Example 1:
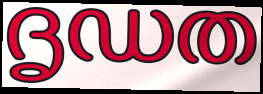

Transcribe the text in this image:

ദൃഡത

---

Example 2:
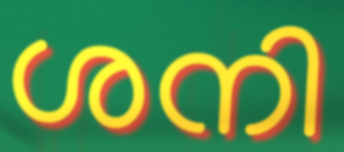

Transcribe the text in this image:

ശനി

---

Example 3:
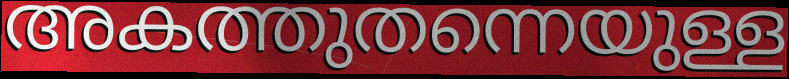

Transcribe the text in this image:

അകത്തുതന്നെയുള്ള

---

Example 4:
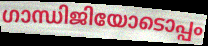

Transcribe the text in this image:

ഗാന്ധിജിയോടൊപ്പം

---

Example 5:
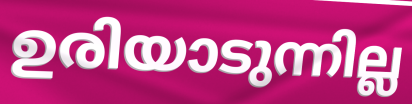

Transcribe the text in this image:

ഉരിയാടുന്നില്ല